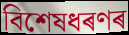
বিশেষধৰণৰ